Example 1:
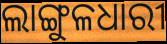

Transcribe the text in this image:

ଲାଙ୍ଗୁଳଧାରୀ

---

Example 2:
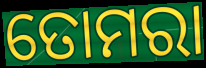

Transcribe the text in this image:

ତୋମରା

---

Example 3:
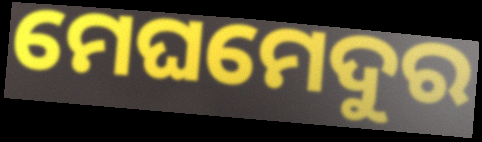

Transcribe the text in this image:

ମେଘମେଦୁର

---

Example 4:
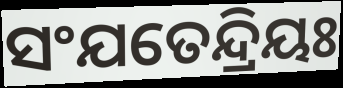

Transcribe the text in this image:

ସଂଯତେନ୍ଦ୍ରିୟଃ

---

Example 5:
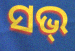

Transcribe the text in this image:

ସଭ୍